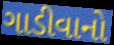
ગાડીવાનો